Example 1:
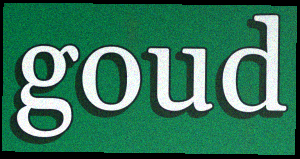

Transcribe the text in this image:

goud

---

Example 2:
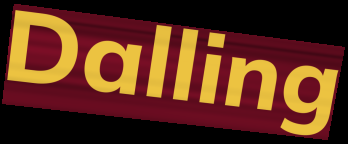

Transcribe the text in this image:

Dalling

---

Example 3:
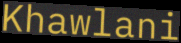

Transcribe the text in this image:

Khawlani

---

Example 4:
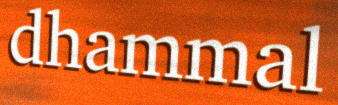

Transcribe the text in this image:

dhammal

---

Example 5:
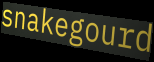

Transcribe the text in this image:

snakegourd